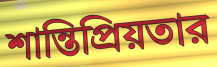
শান্তিপ্রিয়তার